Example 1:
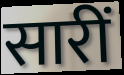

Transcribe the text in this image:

सारीं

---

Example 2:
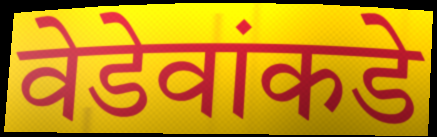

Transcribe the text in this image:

वेडेवांकडे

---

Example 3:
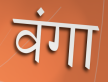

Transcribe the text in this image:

वंगा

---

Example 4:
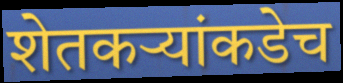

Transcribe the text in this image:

शेतकऱ्यांकडेच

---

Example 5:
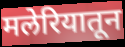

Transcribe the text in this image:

मलेरियातून